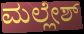
ಮಲ್ಲೇಶ್